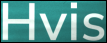
Hvis